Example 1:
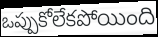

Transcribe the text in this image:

ఒప్పుకోలేకపోయింది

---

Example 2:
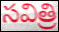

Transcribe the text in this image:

సవిత్రి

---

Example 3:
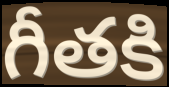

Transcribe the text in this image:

గీతకి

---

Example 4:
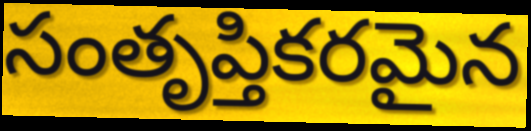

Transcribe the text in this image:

సంతృప్తికరమైన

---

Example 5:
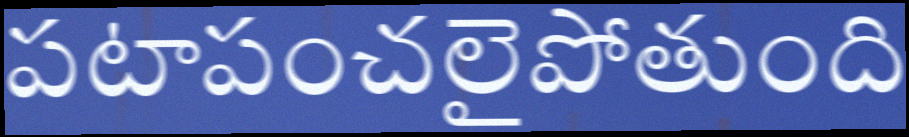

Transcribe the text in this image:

పటాపంచలైపోతుంది